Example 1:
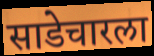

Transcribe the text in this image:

साडेचारला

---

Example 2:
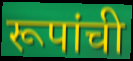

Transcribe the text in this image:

रूपांची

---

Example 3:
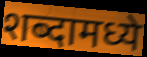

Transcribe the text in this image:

शब्दामध्ये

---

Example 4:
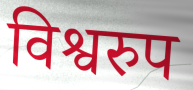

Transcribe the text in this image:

विश्वरुप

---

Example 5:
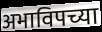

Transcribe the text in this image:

अभाविपच्या